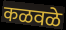
कळवळे